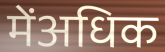
मेंअधिक